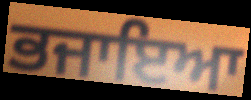
ਭਜਾਇਆ